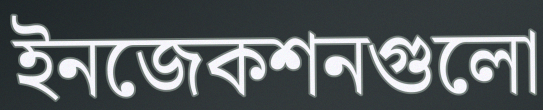
ইনজেকশনগুলো